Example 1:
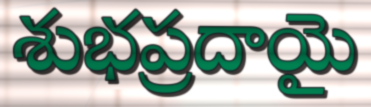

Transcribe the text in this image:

శుభప్రదాయై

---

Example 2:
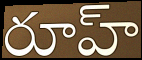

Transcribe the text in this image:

రూహ్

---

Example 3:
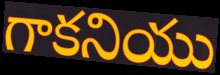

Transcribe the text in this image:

గాకనియు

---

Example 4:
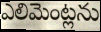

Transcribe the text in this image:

ఎలిమెంట్లను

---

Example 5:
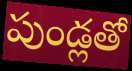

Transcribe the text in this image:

పుండ్లతో